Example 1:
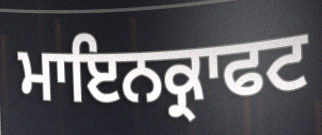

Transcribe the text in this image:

ਮਾਇਨਕ੍ਰਾਫਟ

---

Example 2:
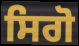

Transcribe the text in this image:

ਸਿਗੋ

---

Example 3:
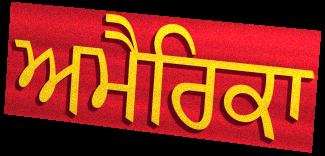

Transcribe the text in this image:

ਅਮੈਰਿਕਾ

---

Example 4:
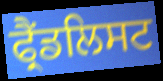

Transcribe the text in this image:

ਫ੍ਰੈਂਡਲਿਸਟ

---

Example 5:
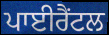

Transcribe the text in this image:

ਪਾਈਰੈਂਟਲ